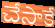
చేసాకే